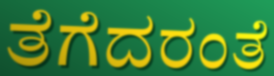
ತೆಗೆದರಂತೆ